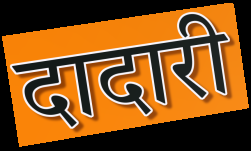
दादारी